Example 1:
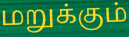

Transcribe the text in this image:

மறுக்கும்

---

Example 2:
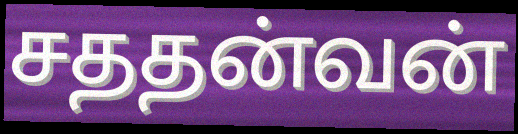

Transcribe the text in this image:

சததன்வன்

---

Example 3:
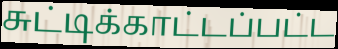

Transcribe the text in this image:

சுட்டிக்காட்டப்பட்ட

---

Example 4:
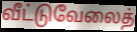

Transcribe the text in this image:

வீட்டுவேலைத்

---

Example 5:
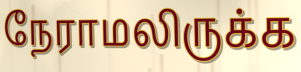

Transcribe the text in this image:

நேராமலிருக்க